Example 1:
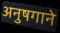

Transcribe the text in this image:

अनुषगाने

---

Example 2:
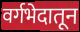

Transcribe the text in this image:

वर्गभेदातून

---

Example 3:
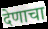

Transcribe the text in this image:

देणाचा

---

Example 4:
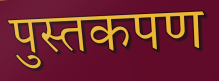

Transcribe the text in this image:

पुस्तकपण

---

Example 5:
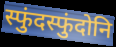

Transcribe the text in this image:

स्फुंदस्फुंदोनि